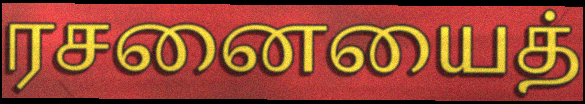
ரசனையைத்